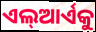
ଏଲ୍ଆର୍ଏକୁ